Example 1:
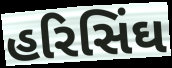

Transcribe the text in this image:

હરિસિંઘ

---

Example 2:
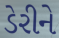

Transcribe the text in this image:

ડેરીને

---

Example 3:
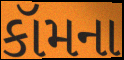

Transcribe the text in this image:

કૉમના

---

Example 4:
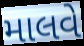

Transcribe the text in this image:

માલવે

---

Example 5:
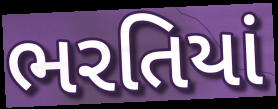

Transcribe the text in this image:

ભરતિયાં